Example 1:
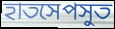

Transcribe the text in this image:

হাতসেপসুত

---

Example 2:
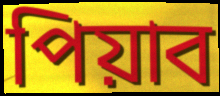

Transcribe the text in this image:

পিয়াব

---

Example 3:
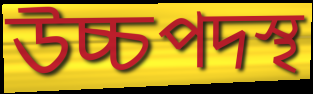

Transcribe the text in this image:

উচ্চপদস্থ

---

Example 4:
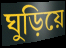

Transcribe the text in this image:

ঘুড়িয়ে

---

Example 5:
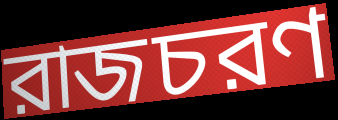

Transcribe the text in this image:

রাজচরণ